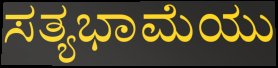
ಸತ್ಯಭಾಮೆಯು